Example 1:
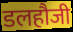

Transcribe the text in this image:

डलहौजी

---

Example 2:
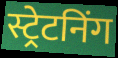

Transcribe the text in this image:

स्ट्रेटनिंग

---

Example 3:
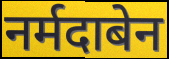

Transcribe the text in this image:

नर्मदाबेन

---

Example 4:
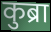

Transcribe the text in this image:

कुब्रा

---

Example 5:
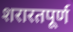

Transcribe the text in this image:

शरारतपूर्ण